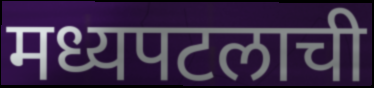
मध्यपटलाची